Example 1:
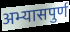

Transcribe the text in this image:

अभ्यासपुर्ण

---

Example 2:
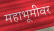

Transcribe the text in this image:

महाभूमीवर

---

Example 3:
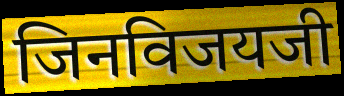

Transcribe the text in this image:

जिनविजयजी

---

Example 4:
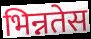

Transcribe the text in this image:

भिन्नतेस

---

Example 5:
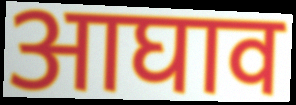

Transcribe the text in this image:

आघाव